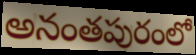
అనంతపురంలో